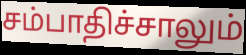
சம்பாதிச்சாலும்